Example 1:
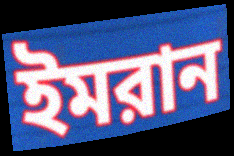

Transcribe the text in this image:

ইমরান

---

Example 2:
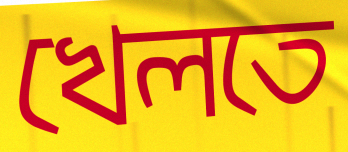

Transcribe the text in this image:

খেলতে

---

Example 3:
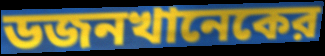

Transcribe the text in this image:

ডজনখানেকের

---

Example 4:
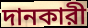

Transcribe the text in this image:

দানকারী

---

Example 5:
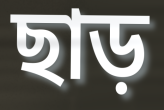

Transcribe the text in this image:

ছাড়